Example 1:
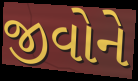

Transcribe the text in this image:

જીવોને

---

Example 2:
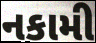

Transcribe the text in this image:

નકામી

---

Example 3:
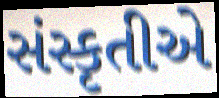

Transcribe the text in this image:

સંસ્કૃતીએ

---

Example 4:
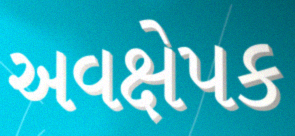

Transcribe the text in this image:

અવક્ષેપક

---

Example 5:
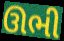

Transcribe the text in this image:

ઊભી